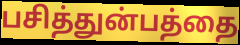
பசித்துன்பத்தை